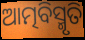
ଆତ୍ମବିସ୍ମୃତି